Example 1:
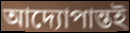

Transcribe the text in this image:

আদ্যোপান্তই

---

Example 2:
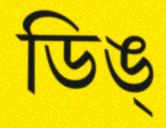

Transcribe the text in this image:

ডিঙ্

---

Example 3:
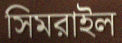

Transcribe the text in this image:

সিমরাইল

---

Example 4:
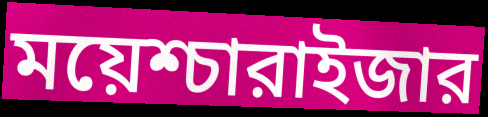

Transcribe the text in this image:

ময়েশ্চারাইজার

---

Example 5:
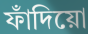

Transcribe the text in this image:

ফাঁদিয়ো